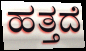
ಹತ್ತದೆ